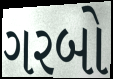
ગરબો